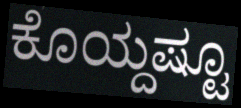
ಕೊಯ್ದಷ್ಟೂ